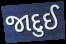
જાદુઈ